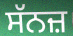
ਸੱਨਜ਼